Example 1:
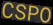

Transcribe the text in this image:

CSPO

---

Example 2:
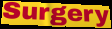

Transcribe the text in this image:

Surgery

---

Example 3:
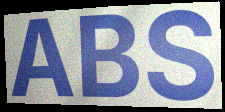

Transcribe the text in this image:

ABS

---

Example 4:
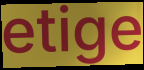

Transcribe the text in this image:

etige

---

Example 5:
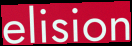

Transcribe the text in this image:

elision